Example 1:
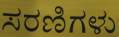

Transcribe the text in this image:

ಸರಣಿಗಳು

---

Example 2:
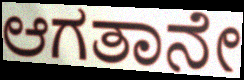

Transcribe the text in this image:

ಆಗತಾನೇ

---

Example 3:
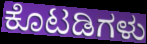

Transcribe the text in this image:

ಕೊಟಡಿಗಳು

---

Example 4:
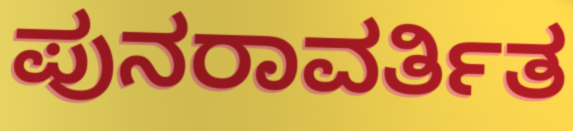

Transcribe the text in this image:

ಪುನರಾವರ್ತಿತ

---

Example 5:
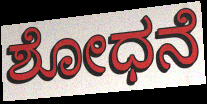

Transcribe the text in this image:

ಶೋಧನೆ